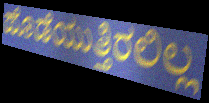
ಹೊಡೆಯುತ್ತಿರಲಿಲ್ಲ